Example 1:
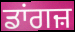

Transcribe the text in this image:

ਡਾਂਗਜ਼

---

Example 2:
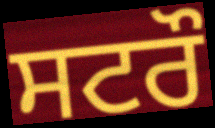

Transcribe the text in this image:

ਸਟਰੌ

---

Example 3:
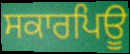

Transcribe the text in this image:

ਸਕਾਰਪਿਊ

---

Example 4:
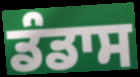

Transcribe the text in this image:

ਡੰਡਾਸ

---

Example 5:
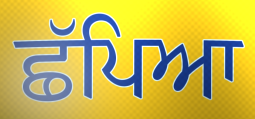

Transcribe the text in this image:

ਛੱਪਿਆ